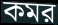
কমর